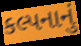
કલ્પનાનું